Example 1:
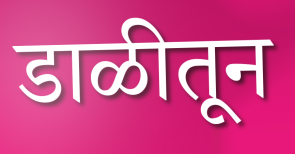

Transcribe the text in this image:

डाळीतून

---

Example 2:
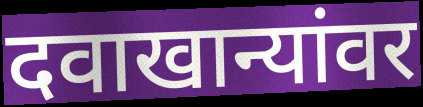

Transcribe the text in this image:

दवाखान्यांवर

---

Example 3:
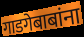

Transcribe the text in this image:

गाडगेबाबांना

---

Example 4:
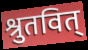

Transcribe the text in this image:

श्रुतवित्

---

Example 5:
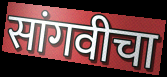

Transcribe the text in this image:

सांगवीचा